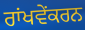
ਰਾਂਖਵੇਂਕਰਨ